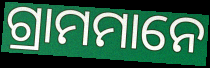
ଗ୍ରାମମାନେ